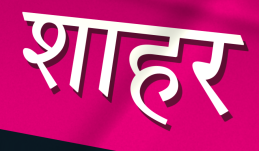
शाहर